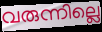
വരുന്നില്ലെ